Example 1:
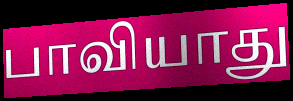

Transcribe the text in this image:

பாவியாது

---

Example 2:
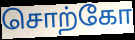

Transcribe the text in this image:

சொற்கோ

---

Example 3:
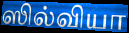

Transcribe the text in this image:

ஸில்வியா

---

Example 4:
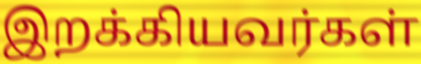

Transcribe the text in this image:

இறக்கியவர்கள்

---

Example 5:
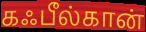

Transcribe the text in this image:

கஃபீல்கான்